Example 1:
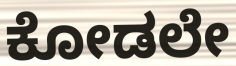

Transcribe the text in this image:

ಕೋಡಲೇ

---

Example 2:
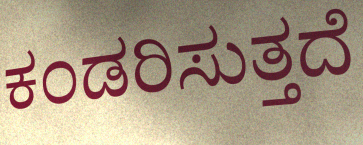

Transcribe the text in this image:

ಕಂಡರಿಸುತ್ತದೆ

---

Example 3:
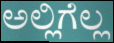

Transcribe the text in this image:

ಅಲ್ಲಿಗೆಲ್ಲ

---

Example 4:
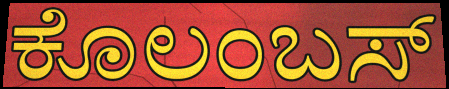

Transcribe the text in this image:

ಕೊಲಂಬಸ್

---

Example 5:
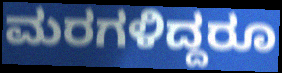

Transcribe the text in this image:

ಮರಗಳಿದ್ದರೂ